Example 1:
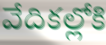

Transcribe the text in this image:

వేదికల్లోకి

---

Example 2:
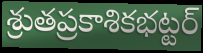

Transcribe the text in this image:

శ్రుతప్రకాశికభట్టర్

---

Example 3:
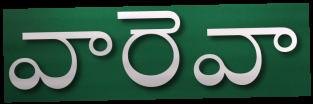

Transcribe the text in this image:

వారెవా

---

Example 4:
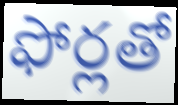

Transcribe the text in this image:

ఫోర్లతో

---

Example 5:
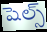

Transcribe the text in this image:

షెల్స్